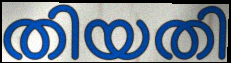
തിയതി